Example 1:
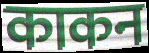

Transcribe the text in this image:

काकन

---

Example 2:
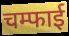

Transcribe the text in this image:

चम्फाई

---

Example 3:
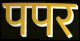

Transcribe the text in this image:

पपर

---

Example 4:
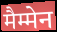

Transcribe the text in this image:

मैम्मेन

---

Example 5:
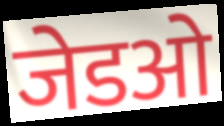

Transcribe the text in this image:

जेडओ